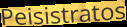
Peisistratos